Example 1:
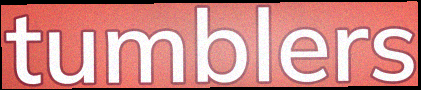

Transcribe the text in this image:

tumblers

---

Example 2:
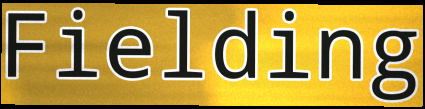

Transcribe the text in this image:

Fielding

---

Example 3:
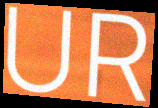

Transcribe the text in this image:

UR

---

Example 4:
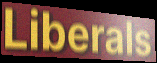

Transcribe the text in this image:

Liberals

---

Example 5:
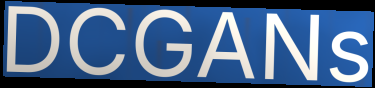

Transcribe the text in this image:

DCGANs